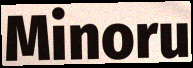
Minoru